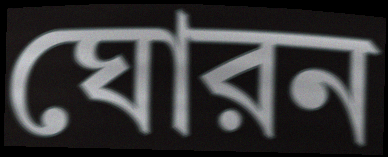
ঘোরন